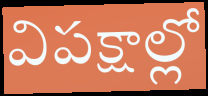
విపక్షాల్లో